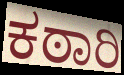
ಕಠಾರಿ